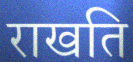
राखति